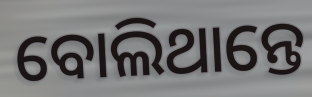
ବୋଲିଥାନ୍ତେ